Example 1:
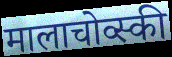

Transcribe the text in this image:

मालाचोव्स्की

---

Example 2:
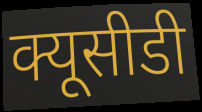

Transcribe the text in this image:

क्यूसीडी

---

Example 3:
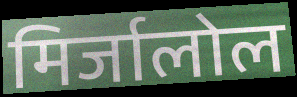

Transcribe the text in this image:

मिर्जालोल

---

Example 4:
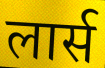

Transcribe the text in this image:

लार्स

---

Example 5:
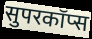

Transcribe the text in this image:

सुपरकॉप्स